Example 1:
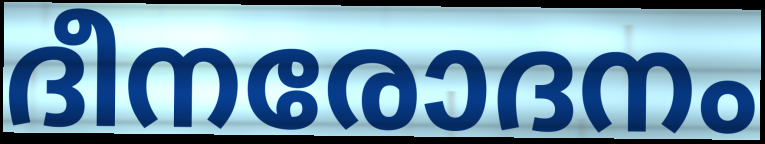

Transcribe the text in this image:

ദീനരോദനം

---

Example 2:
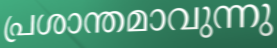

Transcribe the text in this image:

പ്രശാന്തമാവുന്നു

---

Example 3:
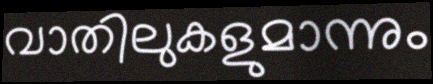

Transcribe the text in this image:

വാതിലുകളുമാന്നും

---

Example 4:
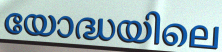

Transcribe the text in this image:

യോദ്ധയിലെ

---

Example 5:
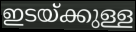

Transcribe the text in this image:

ഇടയ്ക്കുള്ള